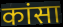
कांसा